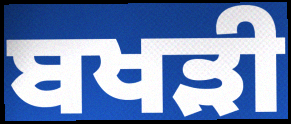
ਬਖੜੀ